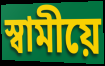
স্বামীয়ে